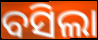
ବସିଲା